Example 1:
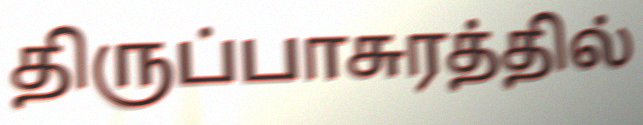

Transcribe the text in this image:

திருப்பாசுரத்தில்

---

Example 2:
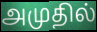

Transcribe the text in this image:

அமுதில்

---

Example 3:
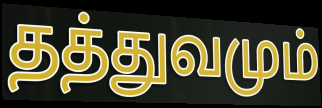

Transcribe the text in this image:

தத்துவமும்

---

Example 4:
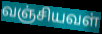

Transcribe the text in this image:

வஞ்சியவள்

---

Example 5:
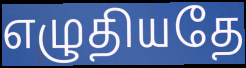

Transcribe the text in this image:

எழுதியதே